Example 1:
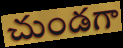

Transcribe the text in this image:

చుండగా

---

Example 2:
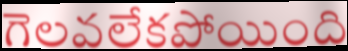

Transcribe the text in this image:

గెలవలేకపోయింది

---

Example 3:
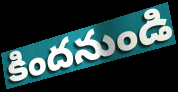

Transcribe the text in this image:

కిందనుండి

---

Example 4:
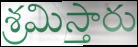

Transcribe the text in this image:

శ్రమిస్తారు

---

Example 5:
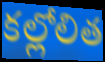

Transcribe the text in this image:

కల్లోలిత